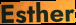
Esther